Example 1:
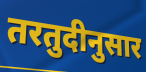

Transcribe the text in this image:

तरतुदीनुसार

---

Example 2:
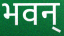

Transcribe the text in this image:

भवन्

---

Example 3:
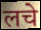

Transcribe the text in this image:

लचे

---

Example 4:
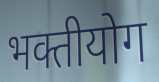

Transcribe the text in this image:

भक्तीयोग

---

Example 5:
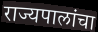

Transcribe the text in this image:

राज्यपालांचा